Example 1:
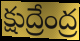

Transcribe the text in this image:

క్షుద్రేంద్ర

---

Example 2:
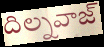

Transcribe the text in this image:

దిల్నవాజ్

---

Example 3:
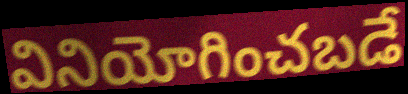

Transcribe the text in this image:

వినియోగించబడే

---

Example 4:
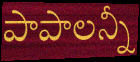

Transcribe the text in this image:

పాపాలన్నీ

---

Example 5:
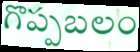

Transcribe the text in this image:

గొప్పబలం